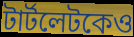
টার্টলেটকেও